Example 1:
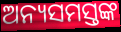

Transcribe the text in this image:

ଅନ୍ୟସମସ୍ତଙ୍କ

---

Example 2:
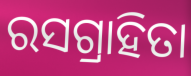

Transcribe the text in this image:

ରସଗ୍ରାହିତା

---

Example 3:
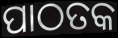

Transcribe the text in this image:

ପାଠତକ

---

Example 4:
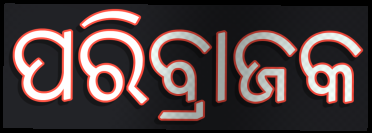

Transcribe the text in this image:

ପରିବ୍ରାଜକ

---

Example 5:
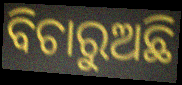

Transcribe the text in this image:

ବିଚାରୁଅଛି